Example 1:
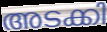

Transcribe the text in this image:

അടക്കി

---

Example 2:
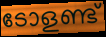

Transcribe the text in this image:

ടോളണ്ട്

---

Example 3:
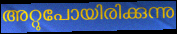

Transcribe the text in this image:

അറ്റുപോയിരിക്കുന്നു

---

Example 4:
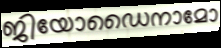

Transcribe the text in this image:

ജിയോഡൈനാമോ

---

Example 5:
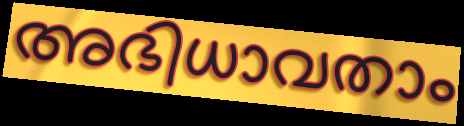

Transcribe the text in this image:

അഭിധാവതാം